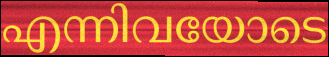
എന്നിവയോടെ